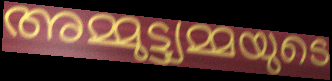
അമ്മുട്ട്യമ്മയുടെ